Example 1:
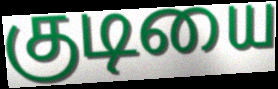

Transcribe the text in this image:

குடியை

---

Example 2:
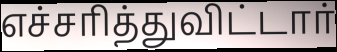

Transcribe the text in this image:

எச்சரித்துவிட்டார்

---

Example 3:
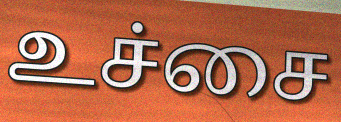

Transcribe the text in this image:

உச்சை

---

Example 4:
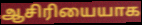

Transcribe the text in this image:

ஆசிரியையாக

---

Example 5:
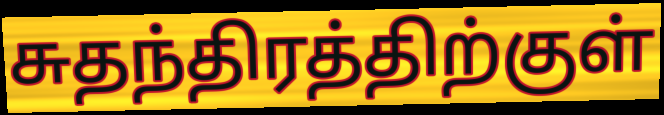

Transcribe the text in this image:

சுதந்திரத்திற்குள்